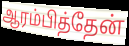
ஆரம்பித்தேன்